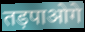
तड़पाओगे